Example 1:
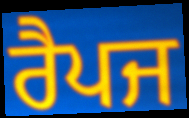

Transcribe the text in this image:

ਰੈਪਜ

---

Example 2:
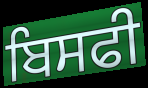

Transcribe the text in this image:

ਬਿਸਫੀ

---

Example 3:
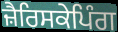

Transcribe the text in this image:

ਜ਼ੈਰਿਸਕੇਪਿੰਗ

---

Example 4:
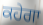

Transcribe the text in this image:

ਕਹੇਗਾ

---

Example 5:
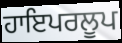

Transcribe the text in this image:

ਹਾਇਪਰਲੂਪ